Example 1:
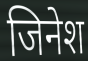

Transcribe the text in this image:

जिनेश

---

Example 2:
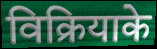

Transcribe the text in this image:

विक्रियाके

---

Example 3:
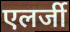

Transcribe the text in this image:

एलर्जी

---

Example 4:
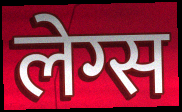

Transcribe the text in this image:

लेग्स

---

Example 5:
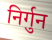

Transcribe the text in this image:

निर्गुन